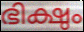
ഭിക്ഷും